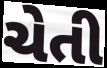
ચેતી